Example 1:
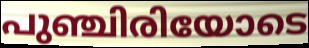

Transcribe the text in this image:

പുഞ്ചിരിയോടെ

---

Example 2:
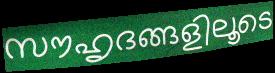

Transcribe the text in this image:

സൗഹൃദങ്ങളിലൂടെ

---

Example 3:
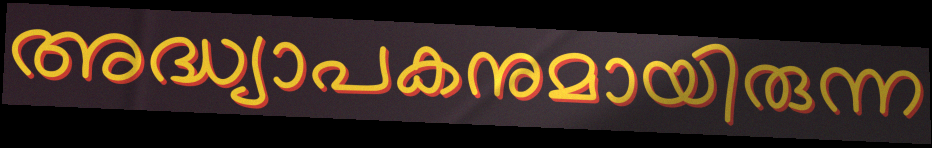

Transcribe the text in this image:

അദ്ധ്യാപകനുമായിരുന്ന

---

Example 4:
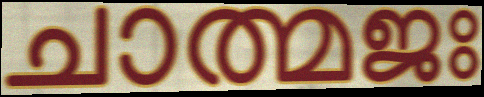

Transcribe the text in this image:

ചാത്മജഃ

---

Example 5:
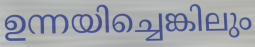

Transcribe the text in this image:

ഉന്നയിച്ചെങ്കിലും